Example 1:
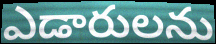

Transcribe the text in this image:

ఎడారులను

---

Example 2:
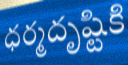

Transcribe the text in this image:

ధర్మదృష్టికి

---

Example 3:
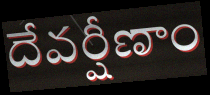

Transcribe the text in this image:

దేవర్షీణాం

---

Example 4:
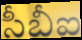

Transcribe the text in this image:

సీబీఐ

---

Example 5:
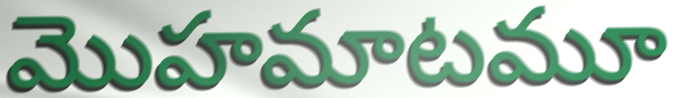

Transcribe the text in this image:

మొహమాటమూ